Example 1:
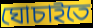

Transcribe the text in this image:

ঘোচাইতে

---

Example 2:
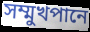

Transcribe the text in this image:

সম্মুখপানে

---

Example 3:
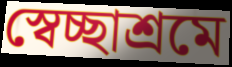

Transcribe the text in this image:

স্বেচ্ছাশ্রমে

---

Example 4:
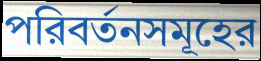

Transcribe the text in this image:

পরিবর্তনসমূহের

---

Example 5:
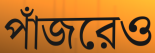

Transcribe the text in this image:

পাঁজরেও